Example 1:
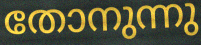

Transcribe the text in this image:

തോനുന്നു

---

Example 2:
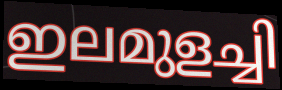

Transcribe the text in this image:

ഇലമുളച്ചി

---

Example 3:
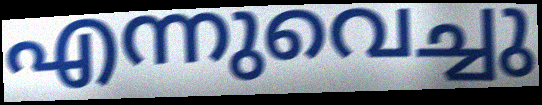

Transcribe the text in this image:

എന്നുവെച്ചു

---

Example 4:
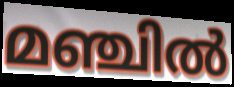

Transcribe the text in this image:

മഞ്ചിൽ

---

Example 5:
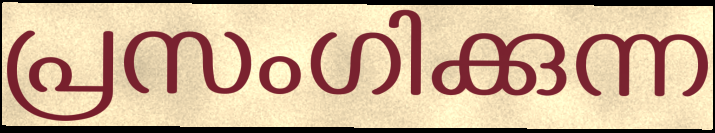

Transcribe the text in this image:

പ്രസംഗിക്കുന്ന